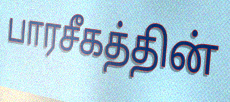
பாரசீகத்தின்